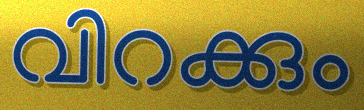
വിറക്കും